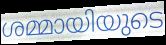
ശമ്മായിയുടെ